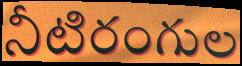
నీటిరంగుల